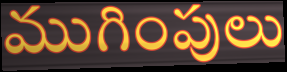
ముగింపులు